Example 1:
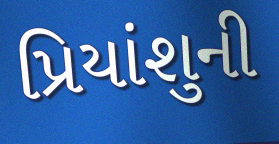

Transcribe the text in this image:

પ્રિયાંશુની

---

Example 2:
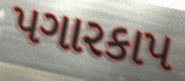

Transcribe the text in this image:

પગારકાપ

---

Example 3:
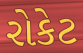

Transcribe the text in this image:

રોકેટ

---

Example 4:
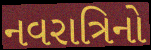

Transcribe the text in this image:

નવરાત્રિનો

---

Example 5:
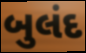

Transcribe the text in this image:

બુલંદ